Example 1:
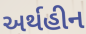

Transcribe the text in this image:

અર્થહીન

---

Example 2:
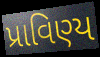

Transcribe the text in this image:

પ્રાવિણ્ય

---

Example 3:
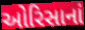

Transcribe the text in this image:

ઓરિસાનાં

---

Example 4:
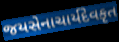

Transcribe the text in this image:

જયસેનાચાર્યદેવકૃત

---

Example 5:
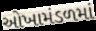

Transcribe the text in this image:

ઓખામંડળમાં